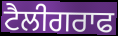
ਟੈਲੀਗਰਾਫ